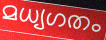
മധ്യഗതം